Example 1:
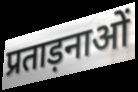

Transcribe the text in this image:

प्रताड़नाओं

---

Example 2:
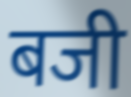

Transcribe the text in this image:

बजी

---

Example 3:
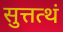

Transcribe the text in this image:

सुत्तत्थं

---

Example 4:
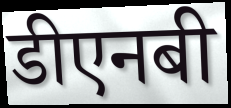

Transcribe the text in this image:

डीएनबी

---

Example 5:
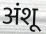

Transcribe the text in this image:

अंशू